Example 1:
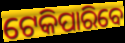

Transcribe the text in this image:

ଟେକିପାରିବେ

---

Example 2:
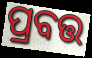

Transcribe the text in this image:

ପ୍ରବତ୍ତ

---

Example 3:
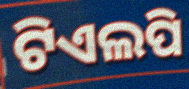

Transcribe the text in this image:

ଟିଏଲପି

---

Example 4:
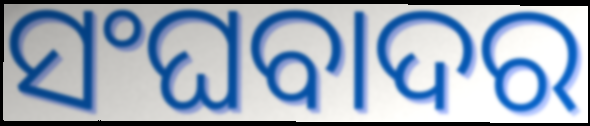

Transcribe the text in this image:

ସଂଘବାଦର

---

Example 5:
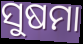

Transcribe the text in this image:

ସୁଷମା